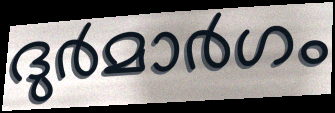
ദുർമാർഗം